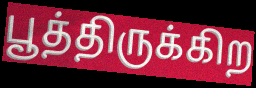
பூத்திருக்கிற